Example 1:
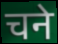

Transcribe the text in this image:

चने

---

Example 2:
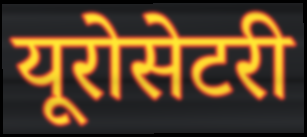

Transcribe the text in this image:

यूरोसेटरी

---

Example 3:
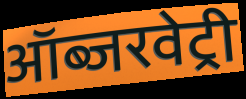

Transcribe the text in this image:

ऑब्जरवेट्री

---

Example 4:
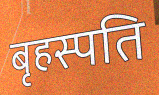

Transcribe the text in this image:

बृहस्‍पति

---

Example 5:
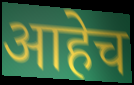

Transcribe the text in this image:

आहेच